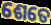
ଶେତେ